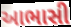
આભાસી